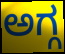
ಅಗ್ಗ